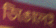
ডিঙোলেই